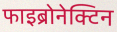
फाइब्रोनेक्टिन